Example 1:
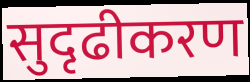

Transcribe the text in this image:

सुदृढीकरण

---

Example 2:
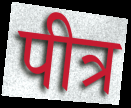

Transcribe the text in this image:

पीत्र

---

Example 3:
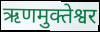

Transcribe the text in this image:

ऋणमुक्तेश्वर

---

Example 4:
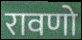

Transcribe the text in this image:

रावणो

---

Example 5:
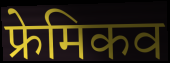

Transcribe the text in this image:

फ्रेमिकव